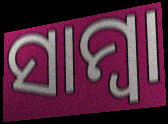
ସାମ୍ବା